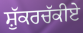
ਸ਼ੁੱਕਰਚੱਕੀਏ